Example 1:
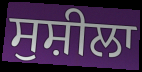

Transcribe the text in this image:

ਸੁਸ਼ੀਲਾ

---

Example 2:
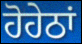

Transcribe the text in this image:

ਹੋਹੇਠਾਂ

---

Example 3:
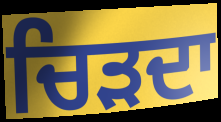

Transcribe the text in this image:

ਚਿੜਦਾ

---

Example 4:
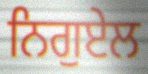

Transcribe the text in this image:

ਨਿਗੁਏਲ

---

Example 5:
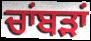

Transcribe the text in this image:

ਚਾਂਬੜਾਂ